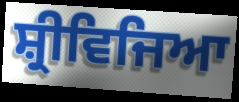
ਸ਼੍ਰੀਵਿਜਿਆ